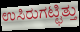
ಉಸಿರುಗಟ್ಟಿತ್ತು